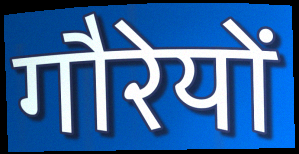
गौरेयों